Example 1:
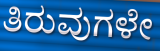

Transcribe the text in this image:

ತಿರುವುಗಳೇ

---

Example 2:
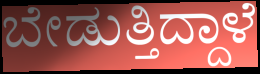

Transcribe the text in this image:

ಬೇಡುತ್ತಿದ್ದಾಳೆ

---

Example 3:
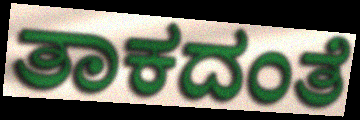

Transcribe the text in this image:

ತಾಕದಂತೆ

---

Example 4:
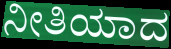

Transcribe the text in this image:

ನೀತಿಯಾದ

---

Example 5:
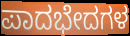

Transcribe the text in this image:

ಪಾದಭೇದಗಳ